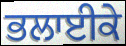
ਭਲਾਈਕੇ